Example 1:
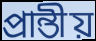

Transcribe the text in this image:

প্রান্তীয়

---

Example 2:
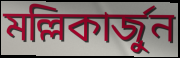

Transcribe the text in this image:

মল্লিকার্জুন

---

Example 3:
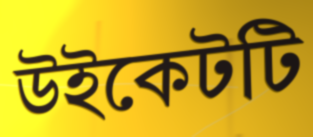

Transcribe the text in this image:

উইকেটটি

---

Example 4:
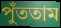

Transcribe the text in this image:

পুঁততাম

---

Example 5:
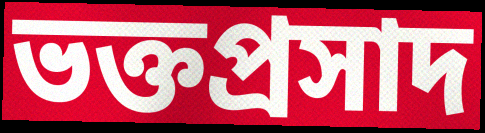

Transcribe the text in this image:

ভক্তপ্রসাদ